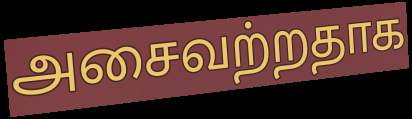
அசைவற்றதாக